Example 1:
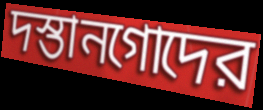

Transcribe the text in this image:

দস্তানগোদের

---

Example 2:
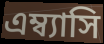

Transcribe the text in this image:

এম্ব্যাসি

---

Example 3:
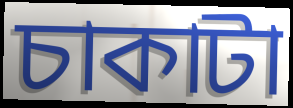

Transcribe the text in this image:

চাকাটা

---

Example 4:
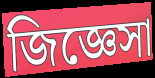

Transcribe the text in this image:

জিজ্ঞেসা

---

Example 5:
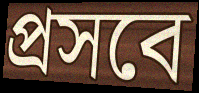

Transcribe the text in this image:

প্রসবে